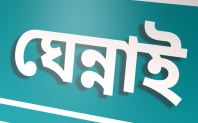
ঘেন্নাই